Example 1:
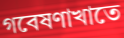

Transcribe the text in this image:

গবেষণাখাতে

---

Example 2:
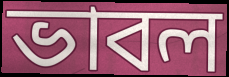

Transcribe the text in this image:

ভাবল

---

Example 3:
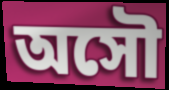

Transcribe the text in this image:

অসৌ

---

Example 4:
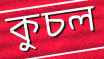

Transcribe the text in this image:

কুচল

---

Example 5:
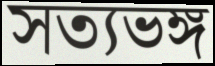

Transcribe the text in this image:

সত্যভঙ্গ